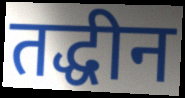
तद्धीन